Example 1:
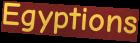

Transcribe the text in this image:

Egyptions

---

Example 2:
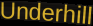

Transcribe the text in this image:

Underhill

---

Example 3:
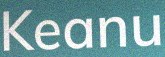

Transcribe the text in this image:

Keanu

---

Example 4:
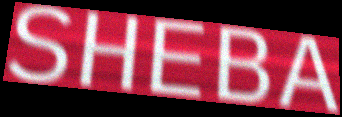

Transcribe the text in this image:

SHEBA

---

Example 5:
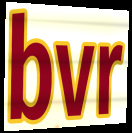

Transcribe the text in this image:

bvr